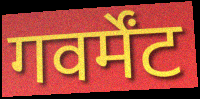
गवर्मेंट